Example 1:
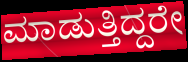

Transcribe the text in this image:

ಮಾಡುತ್ತಿದ್ದರೇ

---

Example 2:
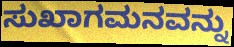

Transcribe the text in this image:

ಸುಖಾಗಮನವನ್ನು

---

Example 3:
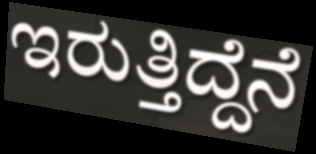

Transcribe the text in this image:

ಇರುತ್ತಿದ್ದೆನೆ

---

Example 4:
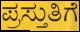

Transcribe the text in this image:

ಪ್ರಸ್ತುತಿಗೆ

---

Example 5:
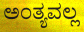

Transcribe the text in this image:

ಅಂತ್ಯವಲ್ಲ